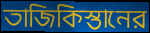
তাজিকিস্তানের